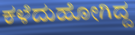
ಕಳೆದುಹೋಗಿದ್ದ